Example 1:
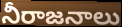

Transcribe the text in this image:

నీరాజనాలు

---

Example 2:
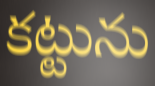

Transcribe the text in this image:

కట్టును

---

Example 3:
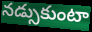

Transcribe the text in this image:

నడ్సుకుంటా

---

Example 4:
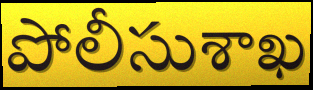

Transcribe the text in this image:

పోలీసుశాఖ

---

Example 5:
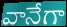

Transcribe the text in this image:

వానేగా